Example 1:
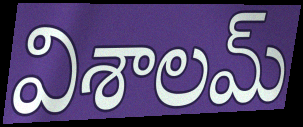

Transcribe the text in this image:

విశాలమ్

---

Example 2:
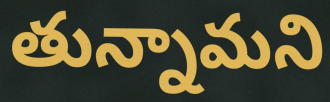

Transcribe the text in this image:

తున్నామని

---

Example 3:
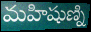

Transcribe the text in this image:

మహిషుణ్ని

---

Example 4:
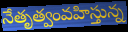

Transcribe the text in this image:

నేతృత్వంవహిస్తున్న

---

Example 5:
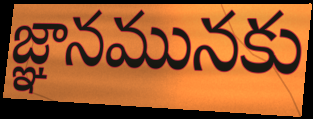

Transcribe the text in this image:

జ్ఞానమునకు